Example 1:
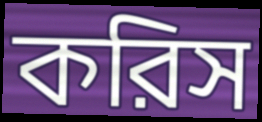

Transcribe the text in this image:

করিস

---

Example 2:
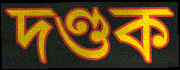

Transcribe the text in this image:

দণ্ডক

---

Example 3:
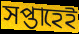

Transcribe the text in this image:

সপ্তাহেই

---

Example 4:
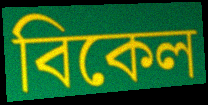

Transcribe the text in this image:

বিকেল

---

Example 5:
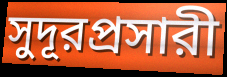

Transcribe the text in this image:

সুদূরপ্রসারী